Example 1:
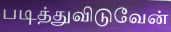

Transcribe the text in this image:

படித்துவிடுவேன்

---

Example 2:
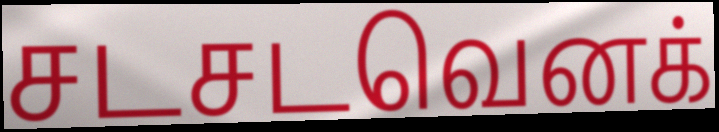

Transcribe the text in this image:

சடசடவெனக்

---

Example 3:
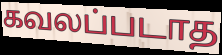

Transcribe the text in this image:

கவலப்படாத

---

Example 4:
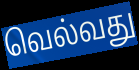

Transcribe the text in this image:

வெல்வது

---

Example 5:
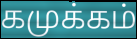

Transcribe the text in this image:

கமுக்கம்